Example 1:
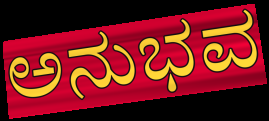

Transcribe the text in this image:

ಅನುಭವ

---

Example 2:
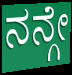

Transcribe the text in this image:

ನನ್ಗೇ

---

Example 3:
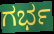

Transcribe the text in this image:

ಗರ್ಭ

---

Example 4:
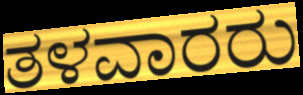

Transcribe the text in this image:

ತಳವಾರರು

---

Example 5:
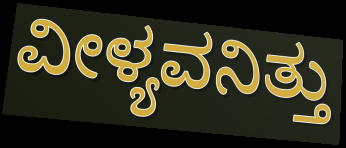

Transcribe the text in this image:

ವೀಳ್ಯವನಿತ್ತು